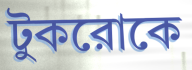
টুকরোকে